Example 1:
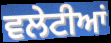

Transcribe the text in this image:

ਵਲੇਟੀਆਂ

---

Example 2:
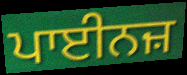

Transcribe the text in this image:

ਪਾਈਨਜ਼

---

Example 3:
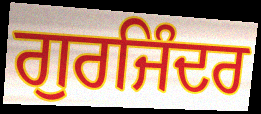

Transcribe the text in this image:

ਗੁਰਜਿੰਦਰ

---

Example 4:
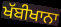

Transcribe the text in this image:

ਖੱਬੀਖਾਨਾ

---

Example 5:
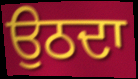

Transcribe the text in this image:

ਉਠਦਾ